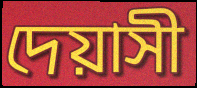
দেয়াসী